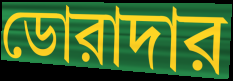
ডোরাদার